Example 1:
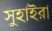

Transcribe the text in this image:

সুহাইরা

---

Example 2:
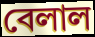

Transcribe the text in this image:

বেলাল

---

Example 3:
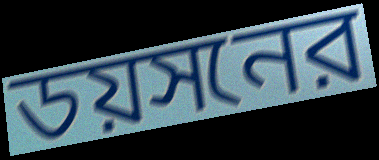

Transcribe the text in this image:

ডয়সনের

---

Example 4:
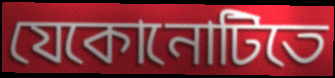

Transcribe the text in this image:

যেকোনোটিতে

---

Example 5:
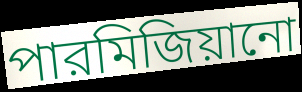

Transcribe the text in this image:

পারমিজিয়ানো